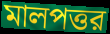
মালপত্তর